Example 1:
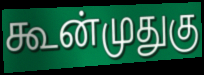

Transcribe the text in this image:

கூன்முதுகு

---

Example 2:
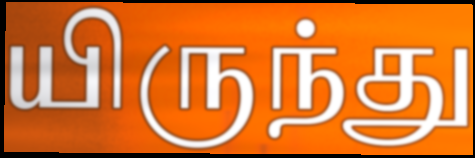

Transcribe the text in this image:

யிருந்து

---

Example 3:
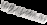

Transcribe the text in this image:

மதமுடைய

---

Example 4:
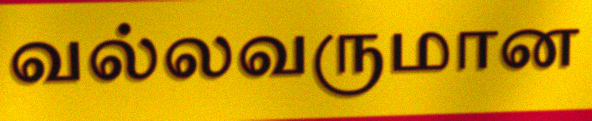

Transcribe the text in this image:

வல்லவருமான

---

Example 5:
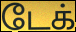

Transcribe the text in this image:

டேக்